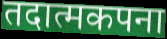
तदात्मकपना